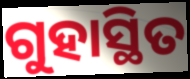
ଗୁହାସ୍ଥିତ